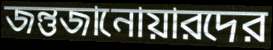
জন্তুজানোয়ারদের